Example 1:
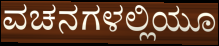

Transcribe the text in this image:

ವಚನಗಳಲ್ಲಿಯೂ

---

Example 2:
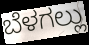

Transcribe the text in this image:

ಬೆಳಗಲ್ಲು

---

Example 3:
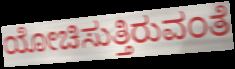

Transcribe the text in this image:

ಯೋಚಿಸುತ್ತಿರುವಂತೆ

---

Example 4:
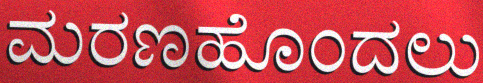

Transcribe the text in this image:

ಮರಣಹೊಂದಲು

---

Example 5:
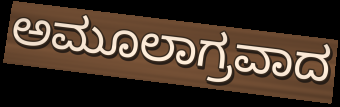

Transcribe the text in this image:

ಅಮೂಲಾಗ್ರವಾದ